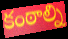
కంఠాల్ని